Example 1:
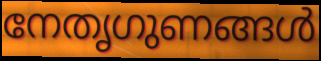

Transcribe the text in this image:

നേതൃഗുണങ്ങൾ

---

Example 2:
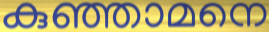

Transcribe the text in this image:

കുഞ്ഞാമനെ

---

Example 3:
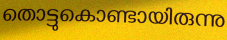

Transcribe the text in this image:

തൊട്ടുകൊണ്ടായിരുന്നു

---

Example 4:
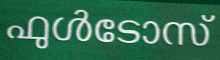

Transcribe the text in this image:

ഫുൾടോസ്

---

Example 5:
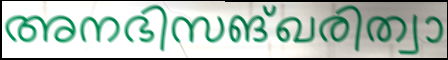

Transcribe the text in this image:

അനഭിസങ്ഖരിത്വാ